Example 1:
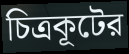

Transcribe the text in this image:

চিত্রকূটের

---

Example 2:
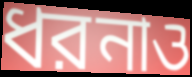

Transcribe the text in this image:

ধরনাও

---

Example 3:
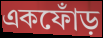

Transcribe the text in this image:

একফোঁড়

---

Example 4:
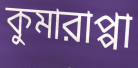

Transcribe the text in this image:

কুমারাপ্পা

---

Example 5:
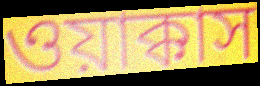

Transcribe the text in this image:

ওয়াক্কাস